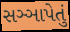
સઞ્ઞાપેતું